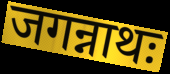
जगन्नाथः